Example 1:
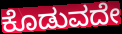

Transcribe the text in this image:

ಕೊಡುವದೇ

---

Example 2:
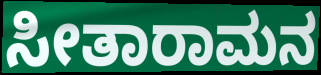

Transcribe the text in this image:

ಸೀತಾರಾಮನ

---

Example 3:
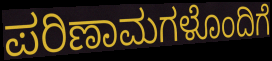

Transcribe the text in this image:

ಪರಿಣಾಮಗಳೊಂದಿಗೆ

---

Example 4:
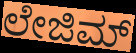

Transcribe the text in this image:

ಲೇಜಿಮ್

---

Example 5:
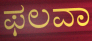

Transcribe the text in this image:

ಫಲವಾ